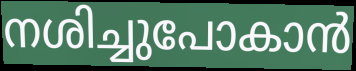
നശിച്ചുപോകാൻ